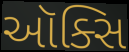
ઑક્સિ